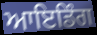
ਆਇਡਿੰਗ